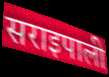
सराइपाली